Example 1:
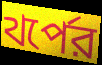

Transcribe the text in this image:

থর্পের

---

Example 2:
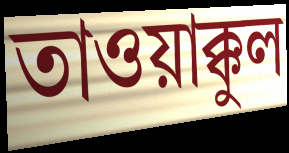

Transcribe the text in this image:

তাওয়াক্কুল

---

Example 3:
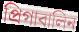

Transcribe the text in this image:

প্রিগাবালিন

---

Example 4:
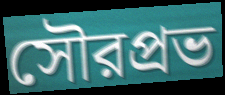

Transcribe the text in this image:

সৌরপ্রভ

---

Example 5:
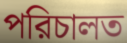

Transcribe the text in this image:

পরিচালত